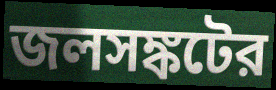
জলসঙ্কটের